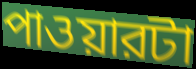
পাওয়ারটা